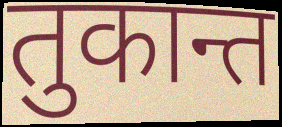
तुकान्त